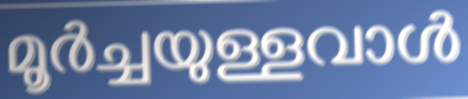
മൂർച്ചയുള്ളവാൾ